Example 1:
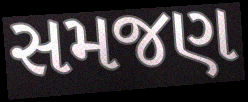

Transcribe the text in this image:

સમજણ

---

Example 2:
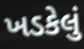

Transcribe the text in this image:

ખડકેલું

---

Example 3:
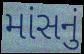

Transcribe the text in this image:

માંસનું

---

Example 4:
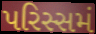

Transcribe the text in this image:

પરિસ્સમં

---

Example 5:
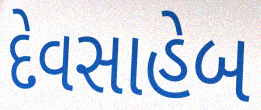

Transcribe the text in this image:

દેવસાહેબ